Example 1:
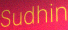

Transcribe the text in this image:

Sudhin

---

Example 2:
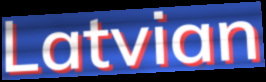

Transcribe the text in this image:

Latvian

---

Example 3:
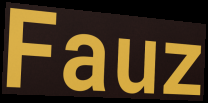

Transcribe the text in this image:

Fauz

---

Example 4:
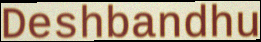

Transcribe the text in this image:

Deshbandhu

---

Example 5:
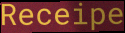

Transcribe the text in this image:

Receipe